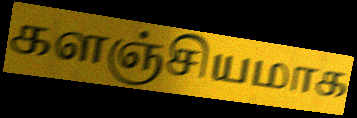
களஞ்சியமாக